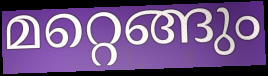
മറ്റെങ്ങും